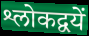
श्लोकद्वयें